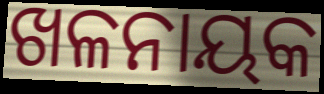
ଖଳନାୟକ